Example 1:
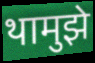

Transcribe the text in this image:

थामुझे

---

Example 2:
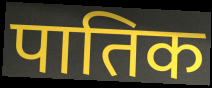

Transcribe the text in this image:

पातिक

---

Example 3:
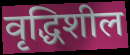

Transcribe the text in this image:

वृद्धिशील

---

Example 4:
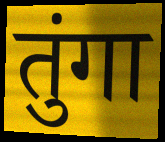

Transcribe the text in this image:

तुंगा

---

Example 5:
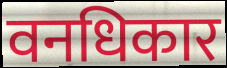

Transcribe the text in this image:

वनधिकार